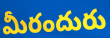
మీరందురు